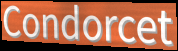
Condorcet